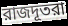
রাজদূতরা